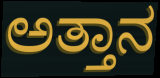
ಅತ್ತಾನ